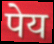
पेय